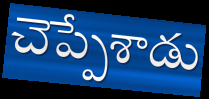
చెప్పేశాడు